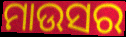
ମାଉସର